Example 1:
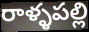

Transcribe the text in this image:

రాళ్ళపల్లి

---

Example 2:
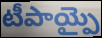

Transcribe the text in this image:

టీపాయ్పై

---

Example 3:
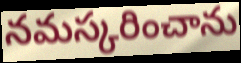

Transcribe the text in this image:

నమస్కరించాను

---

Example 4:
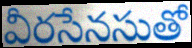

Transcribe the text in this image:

వీరసేనసుతో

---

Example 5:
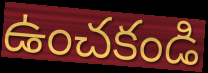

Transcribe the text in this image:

ఉంచకండి